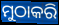
ମୁଠାକରି